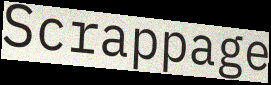
Scrappage